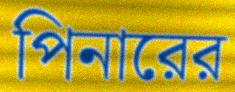
পিনারের